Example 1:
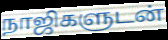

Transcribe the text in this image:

நாஜிகளுடன்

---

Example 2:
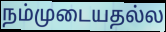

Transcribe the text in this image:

நம்முடையதல்ல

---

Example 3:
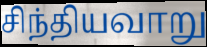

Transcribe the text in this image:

சிந்தியவாறு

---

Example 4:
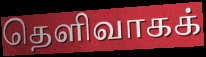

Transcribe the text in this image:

தெளிவாகக்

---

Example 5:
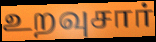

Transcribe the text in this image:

உறவுசார்